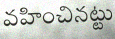
వహించినట్టు